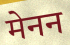
मेनन